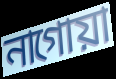
নাগোয়া